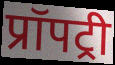
प्रॉपट्री